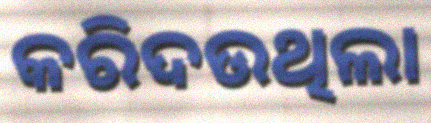
କରିଦଉଥିଲା